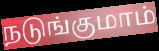
நடுங்குமாம்